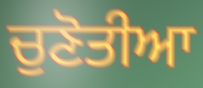
ਚੁਣੋਤੀਆ